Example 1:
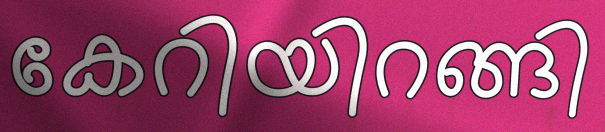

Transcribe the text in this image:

കേറിയിറങ്ങി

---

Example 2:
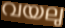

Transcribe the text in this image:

വയലു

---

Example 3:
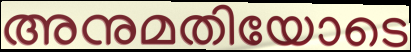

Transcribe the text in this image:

അനുമതിയോടെ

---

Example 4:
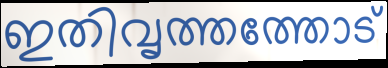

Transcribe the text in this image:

ഇതിവൃത്തത്തോട്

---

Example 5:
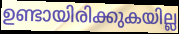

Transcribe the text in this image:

ഉണ്ടായിരിക്കുകയില്ല